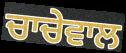
ਚਾਚੇਵਾਲ